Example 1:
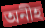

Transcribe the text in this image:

অনীহ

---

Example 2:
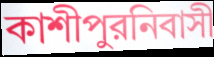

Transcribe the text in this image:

কাশীপুরনিবাসী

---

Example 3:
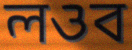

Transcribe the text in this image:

লওব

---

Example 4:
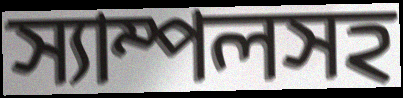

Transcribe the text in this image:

স্যাম্পলসহ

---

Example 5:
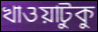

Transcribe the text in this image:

খাওয়াটুকু